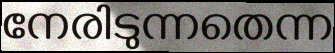
നേരിടുന്നതെന്ന